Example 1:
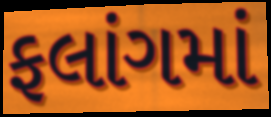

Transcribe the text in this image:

ફલાંગમાં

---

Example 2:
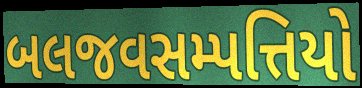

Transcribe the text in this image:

બલજવસમ્પત્તિયો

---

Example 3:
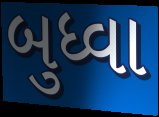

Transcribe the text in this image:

બુધ્વા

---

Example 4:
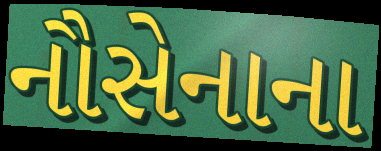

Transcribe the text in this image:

નૌસેનાના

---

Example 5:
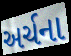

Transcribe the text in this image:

અર્ચના